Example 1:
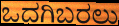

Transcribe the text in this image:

ಒದಗಿಬರಲು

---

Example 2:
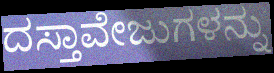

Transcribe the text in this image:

ದಸ್ತಾವೇಜುಗಳನ್ನು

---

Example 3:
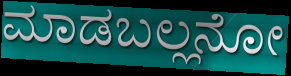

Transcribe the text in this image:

ಮಾಡಬಲ್ಲನೋ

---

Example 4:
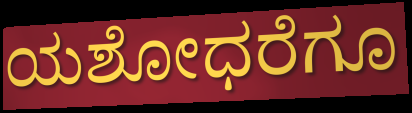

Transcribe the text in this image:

ಯಶೋಧರೆಗೂ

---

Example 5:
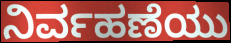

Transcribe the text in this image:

ನಿರ್ವಹಣೆಯು